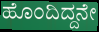
ಹೊಂದಿದ್ದನೇ